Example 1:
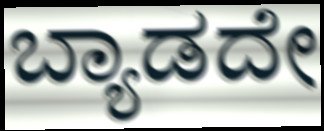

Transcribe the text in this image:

ಬ್ಯಾಡದೇ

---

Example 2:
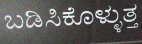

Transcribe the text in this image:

ಬಡಿಸಿಕೊಳ್ಳುತ್ತ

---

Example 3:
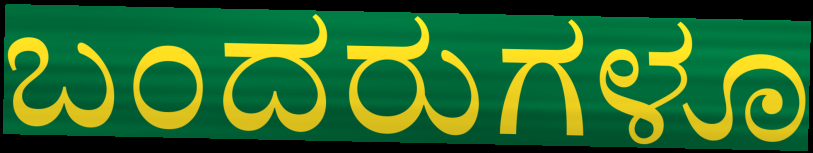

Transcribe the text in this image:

ಬಂದರುಗಳೂ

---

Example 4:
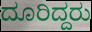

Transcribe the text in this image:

ದೂರಿದ್ದರು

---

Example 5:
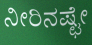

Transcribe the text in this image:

ನೀರಿನಷ್ಟೇ